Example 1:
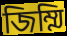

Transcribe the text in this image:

জিম্মি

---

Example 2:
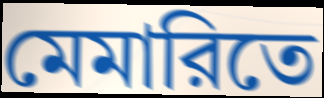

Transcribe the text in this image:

মেমারিতে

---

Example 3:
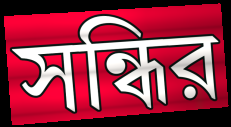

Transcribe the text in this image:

সন্ধির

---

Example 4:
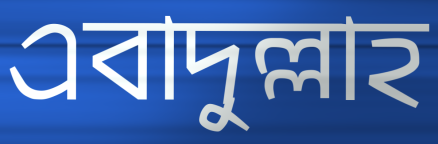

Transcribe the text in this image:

এবাদুল্লাহ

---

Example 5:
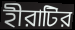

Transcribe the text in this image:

হীরাটির